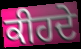
ਕੀਹਦੇ